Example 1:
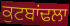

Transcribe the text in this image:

ਕੁਟਬਾਂਢਲਾ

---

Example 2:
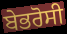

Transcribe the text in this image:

ਬੇਭਰੋਸੀ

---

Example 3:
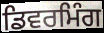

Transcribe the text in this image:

ਡਿਵਰਮਿੰਗ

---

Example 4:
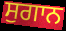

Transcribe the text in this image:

ਸੁਗਾਨ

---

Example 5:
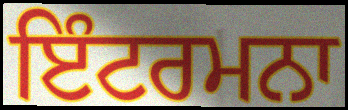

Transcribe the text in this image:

ਇੰਟਰਮਨਾ